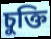
চুক্তি